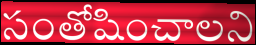
సంతోషించాలని